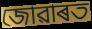
জোৱাৰত